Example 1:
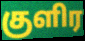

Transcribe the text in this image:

குளிர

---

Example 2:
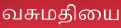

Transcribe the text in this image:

வசுமதியை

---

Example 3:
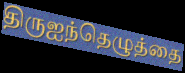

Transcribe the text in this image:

திருஐந்தெழுத்தை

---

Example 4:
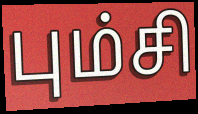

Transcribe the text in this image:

பும்சி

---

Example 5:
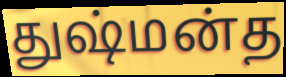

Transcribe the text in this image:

துஷ்மன்த